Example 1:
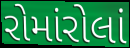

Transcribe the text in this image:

રોમાંરોલાં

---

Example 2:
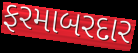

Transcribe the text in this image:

ફરમાબરદાર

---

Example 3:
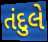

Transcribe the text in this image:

તંદુલે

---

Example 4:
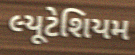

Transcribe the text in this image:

લ્યૂટેશિયમ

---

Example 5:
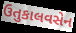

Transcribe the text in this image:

ઉતુકાલવસેન